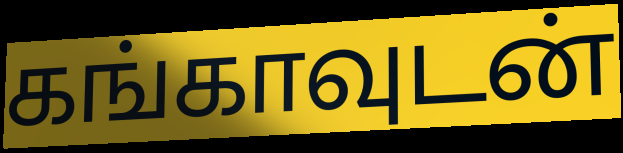
கங்காவுடன்